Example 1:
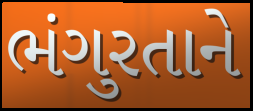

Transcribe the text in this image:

ભંગુરતાને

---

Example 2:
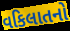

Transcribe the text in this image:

વકિલાતનો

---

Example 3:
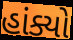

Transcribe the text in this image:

હાંક્યો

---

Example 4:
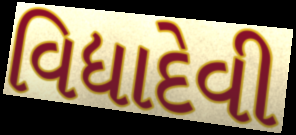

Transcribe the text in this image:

વિદ્યાદેવી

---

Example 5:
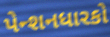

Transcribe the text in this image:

પેન્શનધારકો